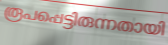
രൂപപ്പെട്ടിരുന്നതായി